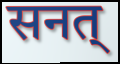
सनत्